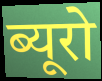
ब्‍यूरो